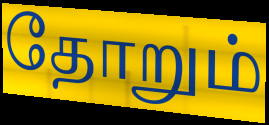
தோறும்